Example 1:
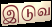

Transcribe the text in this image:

இடுவ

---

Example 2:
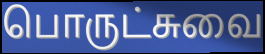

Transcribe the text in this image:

பொருட்சுவை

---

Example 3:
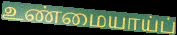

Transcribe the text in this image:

உண்மையாய்ப்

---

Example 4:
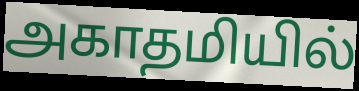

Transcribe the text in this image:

அகாதமியில்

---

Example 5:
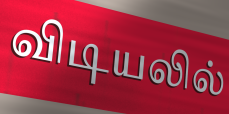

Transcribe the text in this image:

விடியலில்